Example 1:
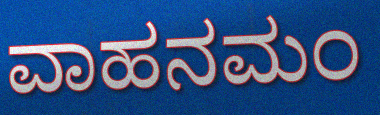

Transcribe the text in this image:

ವಾಹನಮಂ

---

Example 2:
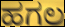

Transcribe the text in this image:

ಹಗಲ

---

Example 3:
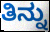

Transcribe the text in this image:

ತಿನ್ನು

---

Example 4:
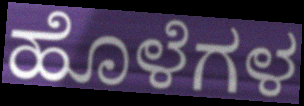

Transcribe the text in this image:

ಹೊಳೆಗಳ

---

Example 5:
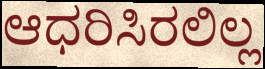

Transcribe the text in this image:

ಆಧರಿಸಿರಲಿಲ್ಲ